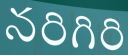
నరిగిరి